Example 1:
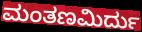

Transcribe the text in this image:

ಮಂತಣಮಿರ್ದು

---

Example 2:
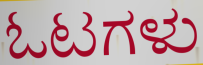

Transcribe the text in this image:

ಓಟಗಳು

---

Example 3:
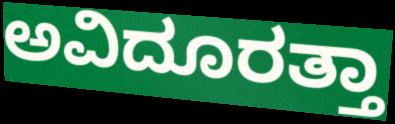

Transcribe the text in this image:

ಅವಿದೂರತ್ತಾ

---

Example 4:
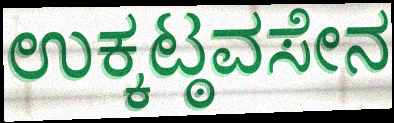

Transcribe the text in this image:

ಉಕ್ಕಟ್ಠವಸೇನ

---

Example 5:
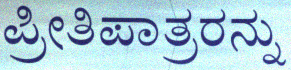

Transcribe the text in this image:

ಪ್ರೀತಿಪಾತ್ರರನ್ನು